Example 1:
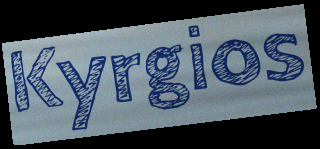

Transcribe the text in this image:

Kyrgios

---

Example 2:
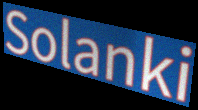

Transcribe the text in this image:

Solanki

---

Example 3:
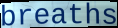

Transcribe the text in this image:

breaths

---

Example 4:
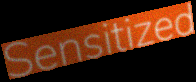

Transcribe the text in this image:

Sensitized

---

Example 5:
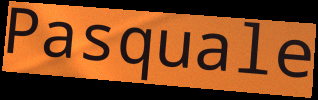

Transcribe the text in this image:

Pasquale